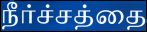
நீர்ச்சத்தை